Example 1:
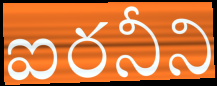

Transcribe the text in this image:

ఐరనీని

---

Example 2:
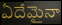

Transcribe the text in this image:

ఏదేమైనా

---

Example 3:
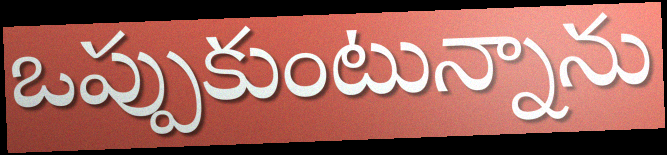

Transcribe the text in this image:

ఒప్పుకుంటున్నాను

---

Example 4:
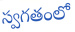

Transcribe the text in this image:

స్వగతంలో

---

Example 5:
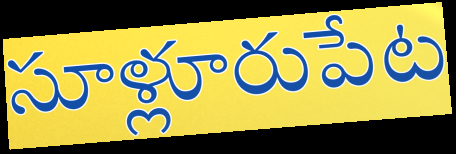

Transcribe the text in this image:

సూళ్లూరుపేట